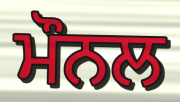
ਮੌਨਲ